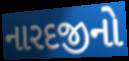
નારદજીનો